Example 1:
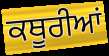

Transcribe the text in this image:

ਕਥੂਰੀਆਂ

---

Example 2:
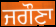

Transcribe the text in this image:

ਜਗੌਣਾ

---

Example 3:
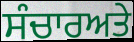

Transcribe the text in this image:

ਸੰਚਾਰਅਤੇ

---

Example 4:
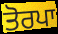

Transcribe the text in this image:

ਤੋਰਪਾ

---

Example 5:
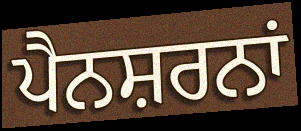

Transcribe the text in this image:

ਪੈਨਸ਼ਰਨਾਂ